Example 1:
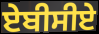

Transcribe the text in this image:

ਏਬੀਸੀਏ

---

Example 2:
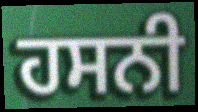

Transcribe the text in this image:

ਹਸਨੀ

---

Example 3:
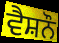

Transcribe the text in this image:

ਵੈਸ਼ਨੌ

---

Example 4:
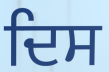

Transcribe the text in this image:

ਦਿਸ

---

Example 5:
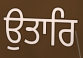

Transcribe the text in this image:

ਉਤਾਰਿ